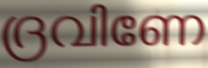
ദ്രവിണേ